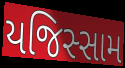
યજિસ્સામ